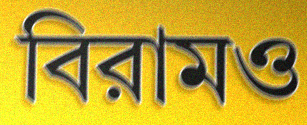
বিরামও